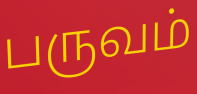
பருவம்